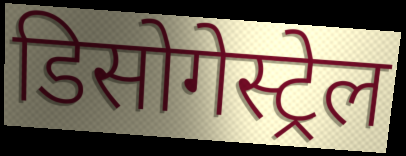
डिसोगेस्ट्रेल